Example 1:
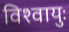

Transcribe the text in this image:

विश्वायुः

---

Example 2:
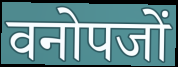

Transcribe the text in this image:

वनोपजों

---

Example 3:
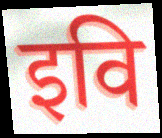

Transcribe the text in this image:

इवि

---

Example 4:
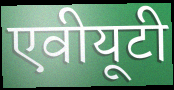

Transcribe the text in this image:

एवीयूटी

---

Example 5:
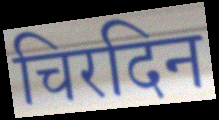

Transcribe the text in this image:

चिरदिन